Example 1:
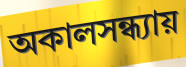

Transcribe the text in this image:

অকালসন্ধ্যায়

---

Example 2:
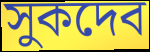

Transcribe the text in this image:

সুকদেব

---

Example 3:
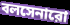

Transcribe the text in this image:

বলসেনারো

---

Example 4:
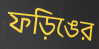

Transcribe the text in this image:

ফড়িঙের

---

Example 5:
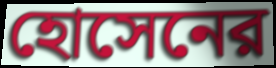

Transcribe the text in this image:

হোসেনের